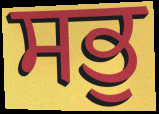
ਸਭੁ